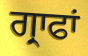
ਗ੍ਰਾਫਾਂ